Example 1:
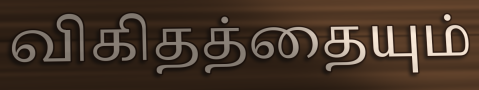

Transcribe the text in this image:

விகிதத்தையும்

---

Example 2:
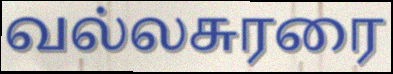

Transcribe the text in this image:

வல்லசுரரை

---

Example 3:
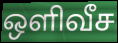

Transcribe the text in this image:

ஒளிவீச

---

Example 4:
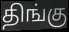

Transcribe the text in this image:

திங்கு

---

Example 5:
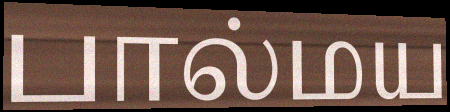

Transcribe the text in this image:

பால்மய